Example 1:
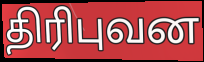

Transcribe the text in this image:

திரிபுவன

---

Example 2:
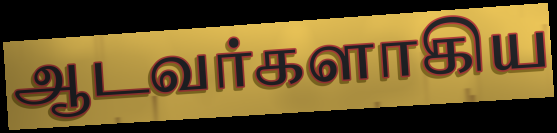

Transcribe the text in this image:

ஆடவர்களாகிய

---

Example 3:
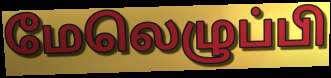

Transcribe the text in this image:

மேலெழுப்பி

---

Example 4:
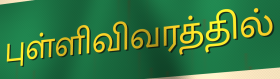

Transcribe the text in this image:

புள்ளிவிவரத்தில்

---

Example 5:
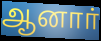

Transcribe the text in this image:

ஆனார்